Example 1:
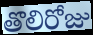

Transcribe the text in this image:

తొలిరోజు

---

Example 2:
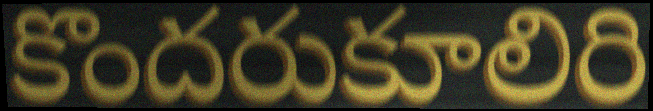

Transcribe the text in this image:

కొందరుకూలిరి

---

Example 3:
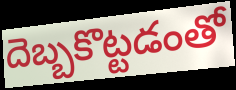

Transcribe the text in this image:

దెబ్బకొట్టడంతో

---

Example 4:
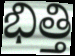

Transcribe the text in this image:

భిత్తి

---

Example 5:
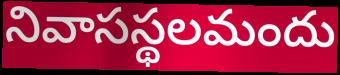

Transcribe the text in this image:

నివాసస్థలమందు